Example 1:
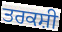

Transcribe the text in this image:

ਤਰਕਸ਼ੀ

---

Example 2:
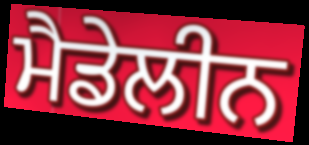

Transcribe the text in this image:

ਮੈਡੇਲੀਨ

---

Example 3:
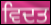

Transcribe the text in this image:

ਵਿਦਤ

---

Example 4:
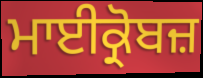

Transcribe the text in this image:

ਮਾਈਕ੍ਰੋਬਜ਼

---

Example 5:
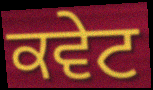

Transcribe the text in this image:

ਕਵੇਟ